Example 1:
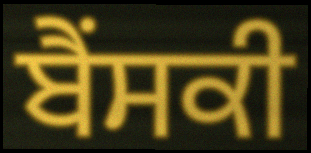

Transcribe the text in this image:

ਬੈਂਸਕੀ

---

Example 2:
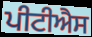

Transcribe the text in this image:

ਪੀਟੀਐਸ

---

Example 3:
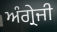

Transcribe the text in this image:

ਅੰਗ੍ਰੇਜੀ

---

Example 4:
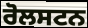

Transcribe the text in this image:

ਰੋਲਸਟਨ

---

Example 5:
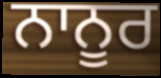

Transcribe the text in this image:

ਨਾਨੂਰ